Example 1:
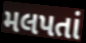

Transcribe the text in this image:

મલપતાં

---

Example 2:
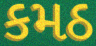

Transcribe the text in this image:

કમઠ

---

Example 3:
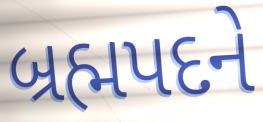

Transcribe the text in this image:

બ્રહ્મપદને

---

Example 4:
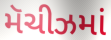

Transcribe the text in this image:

મૅચીઝમાં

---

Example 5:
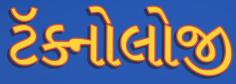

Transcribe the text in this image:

ટૅક્નોલોજી